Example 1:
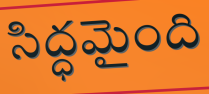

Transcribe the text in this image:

సిద్ధమైంది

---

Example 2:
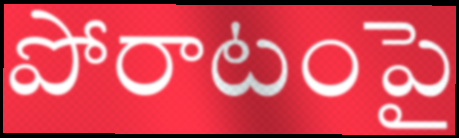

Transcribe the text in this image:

పోరాటంపై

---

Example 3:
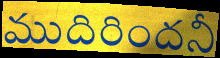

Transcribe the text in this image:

ముదిరిందనీ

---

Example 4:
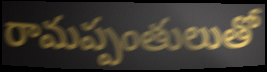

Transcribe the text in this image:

రామప్పంతులుతో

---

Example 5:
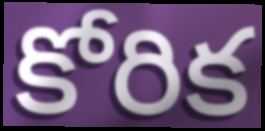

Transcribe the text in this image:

కోరిక